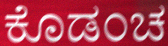
ಕೊಡಂಚ